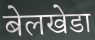
बेलखेडा